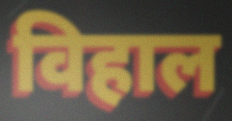
विहाल